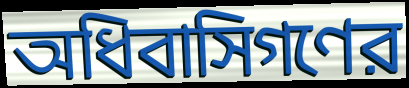
অধিবাসিগণের